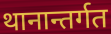
थानान्तर्गत